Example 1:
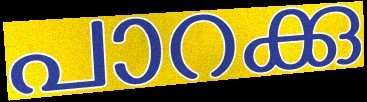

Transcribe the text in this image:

പാറക്കു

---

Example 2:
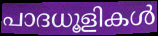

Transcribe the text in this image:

പാദധൂളികൾ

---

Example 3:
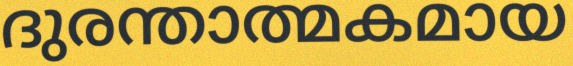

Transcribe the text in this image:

ദുരന്താത്മകമായ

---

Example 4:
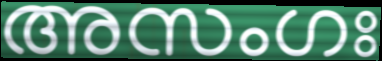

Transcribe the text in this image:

അസംഗഃ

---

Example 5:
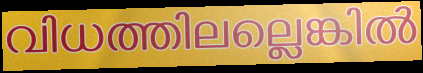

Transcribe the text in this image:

വിധത്തിലല്ലെങ്കിൽ